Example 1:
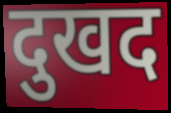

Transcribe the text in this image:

दुखद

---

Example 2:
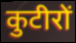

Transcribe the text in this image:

कुटीरों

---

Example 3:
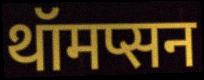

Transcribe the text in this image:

थॉमप्सन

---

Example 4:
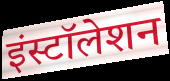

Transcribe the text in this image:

इंस्टॉलेशन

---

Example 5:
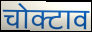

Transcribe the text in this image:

चोक्टाव